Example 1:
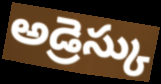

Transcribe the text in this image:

అడ్రెస్కు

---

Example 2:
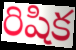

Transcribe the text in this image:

రిషిక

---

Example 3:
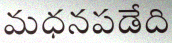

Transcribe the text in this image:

మధనపడేది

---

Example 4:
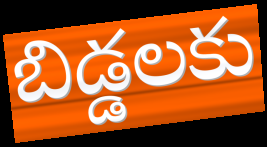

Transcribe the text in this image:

బిడ్డలకు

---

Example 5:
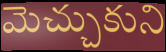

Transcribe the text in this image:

మెచ్చుకుని